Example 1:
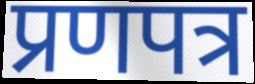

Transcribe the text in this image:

प्रणपत्र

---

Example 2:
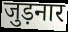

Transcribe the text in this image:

जुड़नार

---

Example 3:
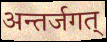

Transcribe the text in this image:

अन्तर्जगत्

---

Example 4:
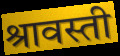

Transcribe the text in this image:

श्रावस्ती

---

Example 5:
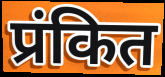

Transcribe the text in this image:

प्रंकित